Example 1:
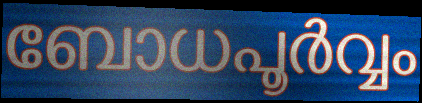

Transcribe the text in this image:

ബോധപൂർവ്വം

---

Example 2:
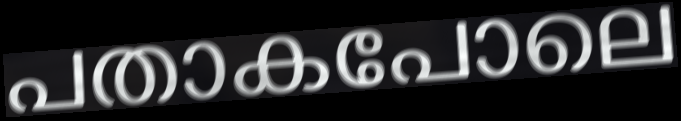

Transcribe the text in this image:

പതാകപോലെ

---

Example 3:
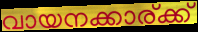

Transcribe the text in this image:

വായനക്കാര്ക്ക്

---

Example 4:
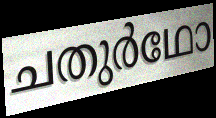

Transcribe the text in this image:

ചതുർഥോ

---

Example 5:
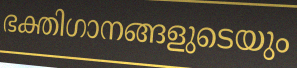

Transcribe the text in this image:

ഭക്തിഗാനങ്ങളുടെയും